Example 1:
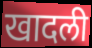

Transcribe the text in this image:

खादली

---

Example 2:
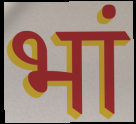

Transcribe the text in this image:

भां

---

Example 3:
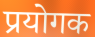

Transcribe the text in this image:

प्रयोगक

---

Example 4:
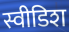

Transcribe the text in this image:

स्वीडिश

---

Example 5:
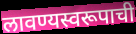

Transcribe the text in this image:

लावण्यस्वरूपाची